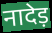
नादेड़